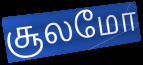
சூலமோ